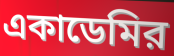
একাডেমির